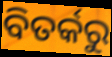
ବିତର୍କରୁ